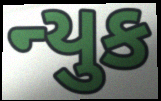
ન્યુક